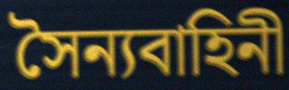
সৈন্যবাহিনী